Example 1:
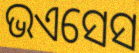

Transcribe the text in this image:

ଭଏସେସ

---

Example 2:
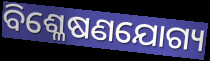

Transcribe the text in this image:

ବିଶ୍ଳେଷଣଯୋଗ୍ୟ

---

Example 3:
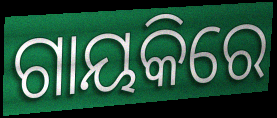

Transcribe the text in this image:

ଗାୟକିରେ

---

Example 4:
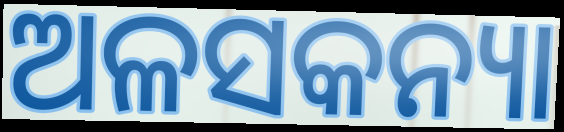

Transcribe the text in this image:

ଅଳସକନ୍ୟା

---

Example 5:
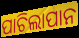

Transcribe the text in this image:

ପାଚିଲାପାନ